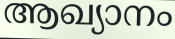
ആഖ്യാനം